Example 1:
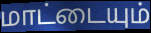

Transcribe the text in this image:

மாட்டையும்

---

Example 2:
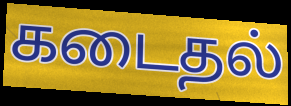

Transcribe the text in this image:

கடைதல்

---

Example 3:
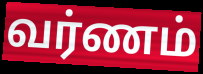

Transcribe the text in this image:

வர்ணம்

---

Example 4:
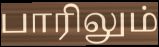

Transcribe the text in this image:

பாரிலும்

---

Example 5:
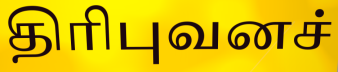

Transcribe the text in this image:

திரிபுவனச்